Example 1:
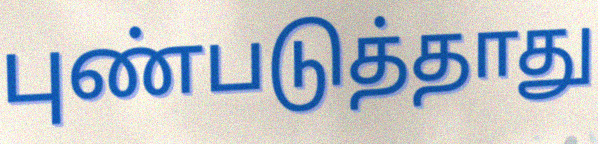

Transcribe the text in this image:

புண்படுத்தாது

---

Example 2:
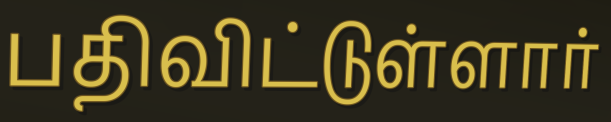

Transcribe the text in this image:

பதிவிட்டுள்ளார்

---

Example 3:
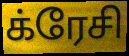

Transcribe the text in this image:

க்ரேசி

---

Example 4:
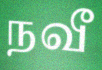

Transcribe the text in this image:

நவீ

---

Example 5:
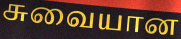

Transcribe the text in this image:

சுவையான